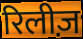
रिलीज़